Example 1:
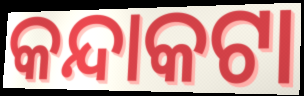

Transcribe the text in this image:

କନ୍ଦାକଟା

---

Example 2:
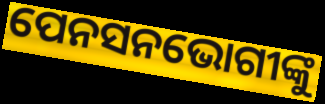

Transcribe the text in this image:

ପେନସନଭୋଗୀଙ୍କୁ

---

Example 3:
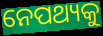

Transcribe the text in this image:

ନେପଥ୍ୟକୁ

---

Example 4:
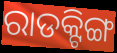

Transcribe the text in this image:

ରାଡକ୍ଟିଙ୍ଗ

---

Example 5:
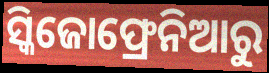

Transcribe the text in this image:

ସ୍କିଜୋଫ୍ରେନିଆରୁ